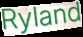
Ryland